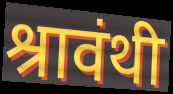
श्रावंथी